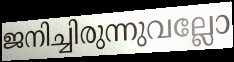
ജനിച്ചിരുന്നുവല്ലോ